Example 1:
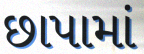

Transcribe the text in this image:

છાપામાં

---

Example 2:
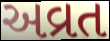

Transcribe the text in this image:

અવ્રત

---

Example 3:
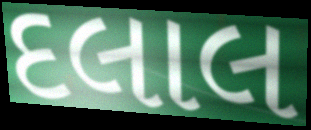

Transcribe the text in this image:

દલાલ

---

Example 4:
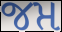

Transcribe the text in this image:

જપ્ત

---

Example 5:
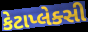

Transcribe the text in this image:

કેટાપ્લેક્સી